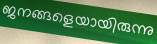
ജനങ്ങളെയായിരുന്നു